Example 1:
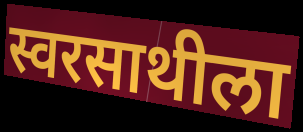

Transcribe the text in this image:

स्वरसाथीला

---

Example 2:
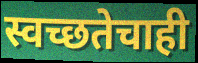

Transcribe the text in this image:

स्वच्छतेचाही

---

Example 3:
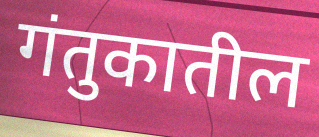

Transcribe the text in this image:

गंतुकातील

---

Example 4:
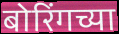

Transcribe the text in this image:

बोरिंगच्या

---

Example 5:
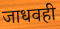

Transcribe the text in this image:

जाधवही